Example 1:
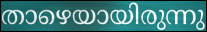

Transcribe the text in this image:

താഴെയായിരുന്നു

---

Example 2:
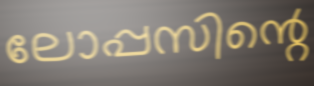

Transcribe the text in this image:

ലോപ്പസിന്റെ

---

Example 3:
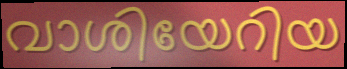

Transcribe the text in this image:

വാശിയേറിയ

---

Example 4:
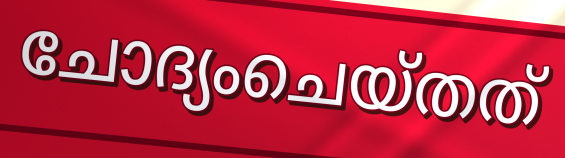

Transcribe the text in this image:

ചോദ്യംചെയ്തത്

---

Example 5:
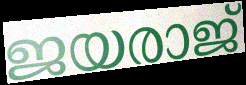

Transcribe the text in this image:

ജയരാജ്